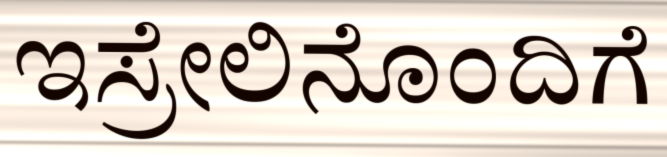
ಇಸ್ರೇಲಿನೊಂದಿಗೆ